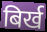
बिर्ख